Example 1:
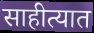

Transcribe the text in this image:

साहीत्यात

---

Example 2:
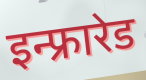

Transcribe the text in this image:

इन्फ्रारेड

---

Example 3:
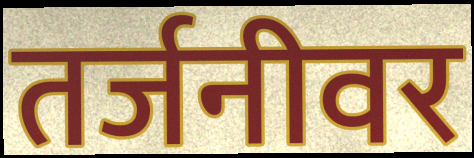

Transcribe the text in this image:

तर्जनीवर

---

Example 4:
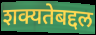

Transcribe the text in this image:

शक्यतेबद्दल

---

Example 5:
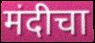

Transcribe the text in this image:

मंदीचा